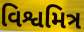
વિશ્વમિત્ર